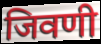
जिवणी